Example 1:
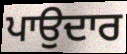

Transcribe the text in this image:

ਪਾਉਦਾਰ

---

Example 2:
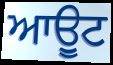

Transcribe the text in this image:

ਆਉੂਟ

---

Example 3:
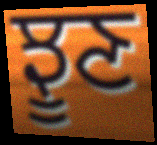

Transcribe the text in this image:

ਝੂਣ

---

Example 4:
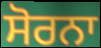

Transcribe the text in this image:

ਸੋਰਨਾ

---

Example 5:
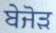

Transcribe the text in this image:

ਬੇਜੋੜ